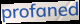
profaned